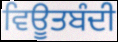
ਵਿਊਤਬੰਦੀ